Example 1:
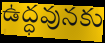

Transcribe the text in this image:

ఉద్ధవునకు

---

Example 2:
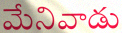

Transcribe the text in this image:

మేనివాడు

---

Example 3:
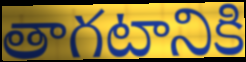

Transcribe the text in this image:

తాగటానికి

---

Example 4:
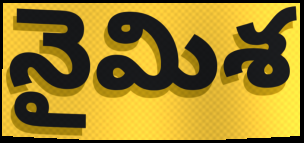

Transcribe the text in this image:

నైమిశ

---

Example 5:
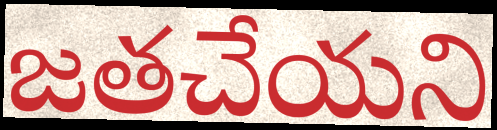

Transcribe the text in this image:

జతచేయని